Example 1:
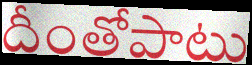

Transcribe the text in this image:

దీంతోపాటు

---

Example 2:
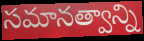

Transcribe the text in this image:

సమానత్వాన్ని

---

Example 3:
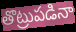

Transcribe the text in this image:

తొట్రుపడినా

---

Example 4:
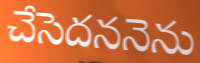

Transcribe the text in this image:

చేసెదననెను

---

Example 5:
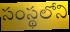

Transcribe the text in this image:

సంస్థలోని